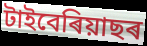
টাইবেৰিয়াছৰ